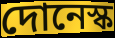
দোনেস্ক